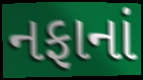
નફાનાં